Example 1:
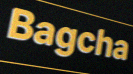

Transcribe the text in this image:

Bagcha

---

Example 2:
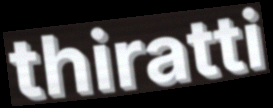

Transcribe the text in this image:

thiratti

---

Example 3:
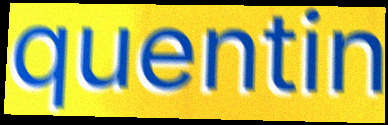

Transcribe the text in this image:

quentin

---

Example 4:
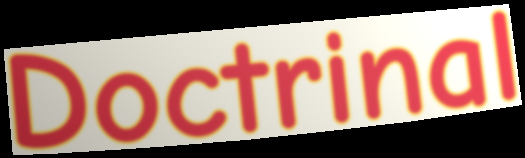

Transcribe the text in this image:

Doctrinal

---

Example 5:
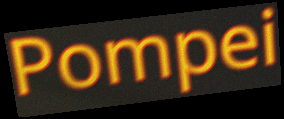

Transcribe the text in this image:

Pompei